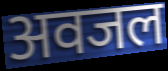
अवजल